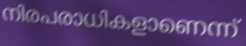
നിരപരാധികളാണെന്ന്